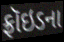
ફ્રૉઇડના